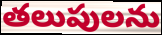
తలుపులను